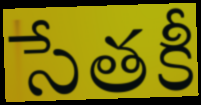
సేతకీ